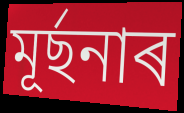
মূৰ্ছনাৰ